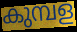
കുമ്പള